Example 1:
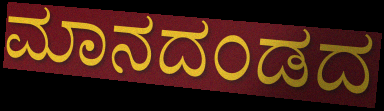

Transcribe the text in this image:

ಮಾನದಂಡದ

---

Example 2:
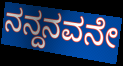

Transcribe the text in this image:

ನನ್ದನವನೇ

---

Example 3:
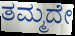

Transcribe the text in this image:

ತಮ್ಮದೇ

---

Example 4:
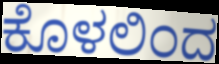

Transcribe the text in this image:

ಕೊಳಲಿಂದ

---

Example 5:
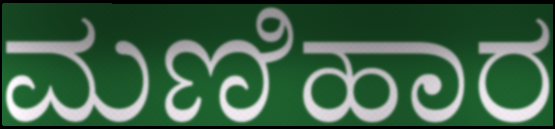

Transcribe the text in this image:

ಮಣಿಹಾರ